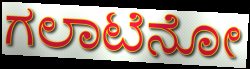
ಗಲಾಟೆನೋ